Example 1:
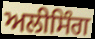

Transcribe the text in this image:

ਅਲੀਸਿੰਗ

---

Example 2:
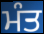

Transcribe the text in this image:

ਮੰਤ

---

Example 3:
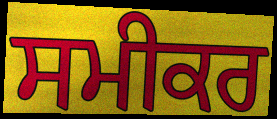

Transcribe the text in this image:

ਸਮੀਕਰ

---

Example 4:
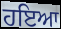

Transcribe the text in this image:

ਹਇਆ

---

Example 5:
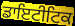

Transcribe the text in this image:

ਡਾਇਟੀਟਿਕ